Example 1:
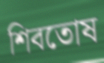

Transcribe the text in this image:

শিবতোষ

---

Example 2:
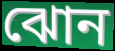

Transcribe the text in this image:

ঝোন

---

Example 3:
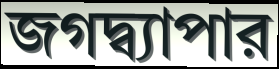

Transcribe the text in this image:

জগদ্ব্যাপার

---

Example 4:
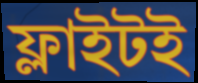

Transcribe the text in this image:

ফ্লাইটই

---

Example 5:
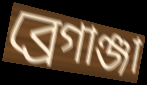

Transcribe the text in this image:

ব্রেগাঞ্জা